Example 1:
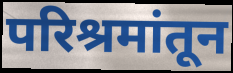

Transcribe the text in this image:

परिश्रमांतून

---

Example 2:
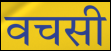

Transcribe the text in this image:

वचसी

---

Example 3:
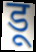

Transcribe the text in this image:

डू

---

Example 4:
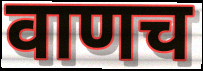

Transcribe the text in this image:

वाणच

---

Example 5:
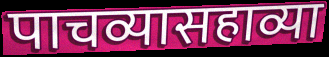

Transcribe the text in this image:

पाचव्यासहाव्या